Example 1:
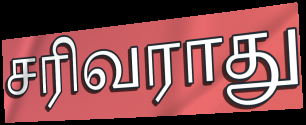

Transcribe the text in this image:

சரிவராது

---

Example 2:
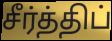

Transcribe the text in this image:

சீர்த்திப்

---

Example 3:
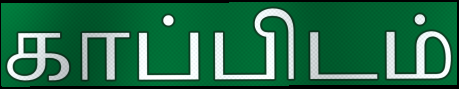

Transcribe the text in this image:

காப்பிடம்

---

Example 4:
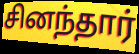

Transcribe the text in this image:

சினந்தார்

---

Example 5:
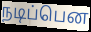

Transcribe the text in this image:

நடிப்பென